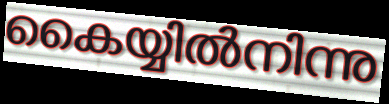
കൈയ്യിൽനിന്നു